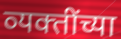
व्‍यक्‍तींच्‍या